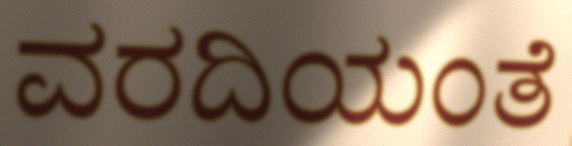
ವರದಿಯಂತೆ